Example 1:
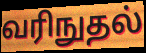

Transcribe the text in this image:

வரிநுதல்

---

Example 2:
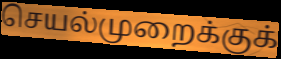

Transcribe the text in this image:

செயல்முறைக்குக்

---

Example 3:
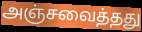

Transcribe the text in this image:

அஞ்சவைத்தது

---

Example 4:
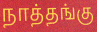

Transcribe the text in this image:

நாத்தங்கு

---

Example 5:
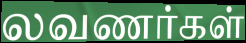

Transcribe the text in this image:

லவணர்கள்